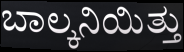
ಬಾಲ್ಕನಿಯಿತ್ತು